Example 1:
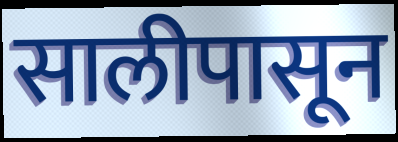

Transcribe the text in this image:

सालीपासून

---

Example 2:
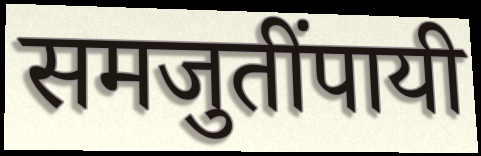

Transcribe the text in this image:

समजुतींपायी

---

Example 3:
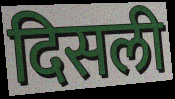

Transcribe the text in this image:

दिसली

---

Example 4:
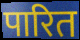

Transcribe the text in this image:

पारित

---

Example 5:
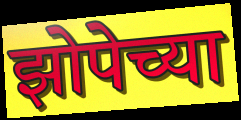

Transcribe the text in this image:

झोपेच्या